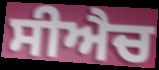
ਸੀਐਚ